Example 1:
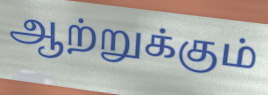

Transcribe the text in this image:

ஆற்றுக்கும்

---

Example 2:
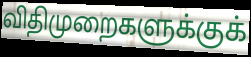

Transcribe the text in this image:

விதிமுறைகளுக்குக்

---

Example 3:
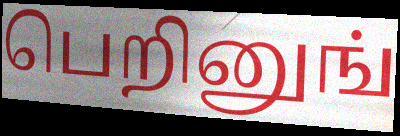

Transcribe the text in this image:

பெறினுங்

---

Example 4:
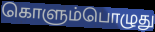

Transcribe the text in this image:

கொளும்பொழுது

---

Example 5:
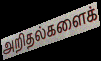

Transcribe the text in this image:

அறிதல்களைக்